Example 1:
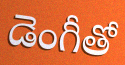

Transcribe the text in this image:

డెంగీతో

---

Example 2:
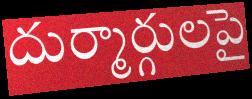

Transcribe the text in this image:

దుర్మార్గులపై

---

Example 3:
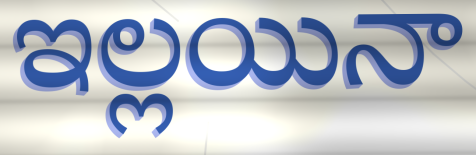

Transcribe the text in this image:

ఇల్లయినా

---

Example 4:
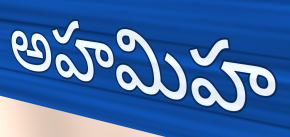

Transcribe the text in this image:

అహమిహ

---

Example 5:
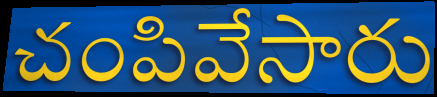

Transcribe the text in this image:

చంపివేసారు